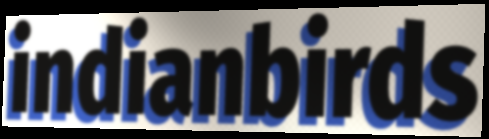
indianbirds